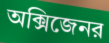
অক্সিজেনর